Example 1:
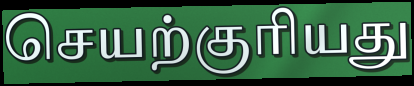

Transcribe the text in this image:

செயற்குரியது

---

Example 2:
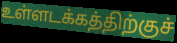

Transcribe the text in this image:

உள்ளடக்கத்திற்குச்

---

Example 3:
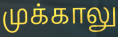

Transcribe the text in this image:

முக்காலு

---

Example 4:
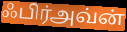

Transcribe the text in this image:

ஃபிர்அவ்ன்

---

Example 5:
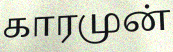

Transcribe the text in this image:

காரமுன்